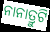
ନାନାତ୍ରୁଟି